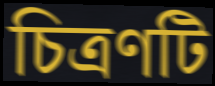
চিত্রণটি